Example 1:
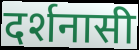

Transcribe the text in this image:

दर्शनासी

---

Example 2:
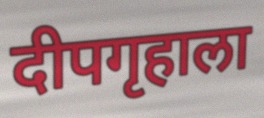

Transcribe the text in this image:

दीपगृहाला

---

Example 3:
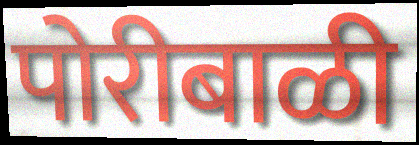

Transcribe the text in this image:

पोरीबाळी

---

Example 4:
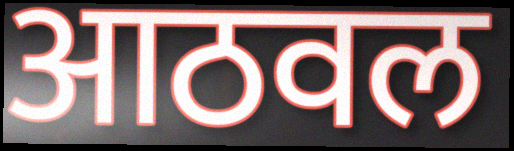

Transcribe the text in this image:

आठवल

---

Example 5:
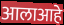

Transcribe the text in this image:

आलाआहे